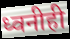
ध्वनीही